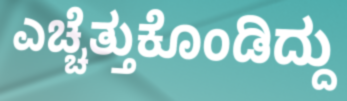
ಎಚ್ಚೆತ್ತುಕೊಂಡಿದ್ದು